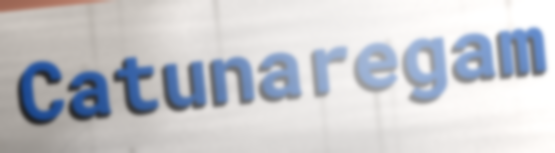
Catunaregam